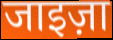
जाइज़ा